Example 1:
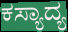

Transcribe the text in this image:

ಕಸ್ಯಾದ್ಯ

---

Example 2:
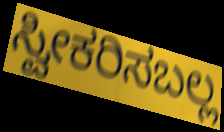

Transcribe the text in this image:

ಸ್ವೀಕರಿಸಬಲ್ಲ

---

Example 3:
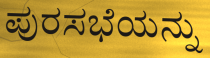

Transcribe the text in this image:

ಪುರಸಭೆಯನ್ನು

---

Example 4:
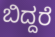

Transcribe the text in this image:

ಬಿದ್ದರೆ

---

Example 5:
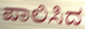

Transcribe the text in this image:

ಪಾಲಿಸಿದ